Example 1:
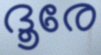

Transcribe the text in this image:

ദൂരേ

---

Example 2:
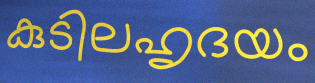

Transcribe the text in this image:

കുടിലഹൃദയം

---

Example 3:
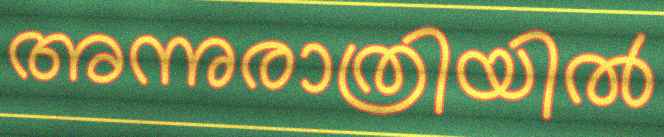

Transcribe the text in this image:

അന്നുരാത്രിയിൽ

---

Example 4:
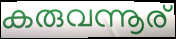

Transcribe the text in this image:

കരുവന്നൂര്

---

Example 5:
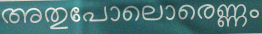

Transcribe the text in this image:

അതുപോലൊരെണ്ണം